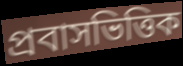
প্রবাসভিত্তিক